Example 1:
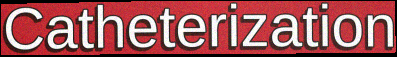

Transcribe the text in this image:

Catheterization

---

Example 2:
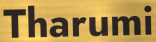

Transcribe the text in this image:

Tharumi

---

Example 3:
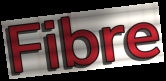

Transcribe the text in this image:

Fibre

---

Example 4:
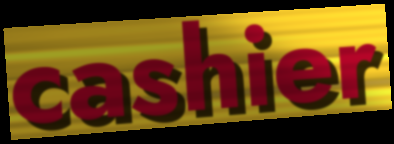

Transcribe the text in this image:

cashier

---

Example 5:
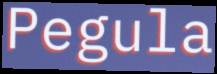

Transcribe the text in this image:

Pegula